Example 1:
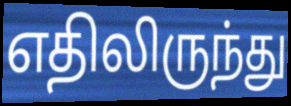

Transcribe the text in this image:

எதிலிருந்து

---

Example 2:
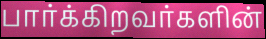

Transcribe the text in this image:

பார்க்கிறவர்களின்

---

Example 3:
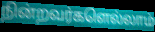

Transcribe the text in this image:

நின்றவர்களெல்லாம்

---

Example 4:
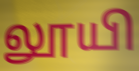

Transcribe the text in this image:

லூயி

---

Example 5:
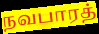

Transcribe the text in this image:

நவபாரத்